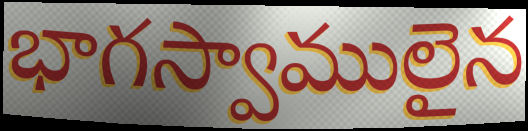
భాగస్వాములైన